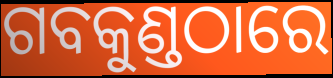
ଗବକୁଣ୍ଡଠାରେ